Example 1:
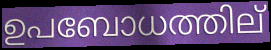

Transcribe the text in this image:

ഉപബോധത്തില്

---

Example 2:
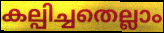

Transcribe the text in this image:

കല്പിച്ചതെല്ലാം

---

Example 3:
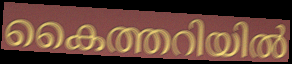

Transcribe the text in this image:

കൈത്തറിയിൽ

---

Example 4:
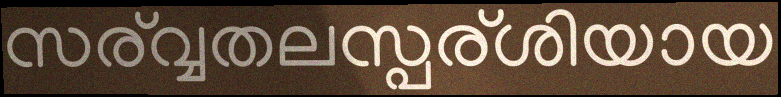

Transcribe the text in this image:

സര്വ്വതലസ്പര്ശിയായ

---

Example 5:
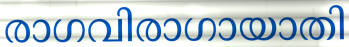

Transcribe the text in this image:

രാഗവിരാഗായാതി